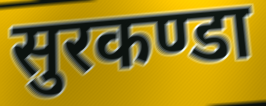
सुरकण्डा